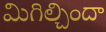
మిగిల్చిందా